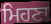
ਮਿਹਣਾ